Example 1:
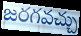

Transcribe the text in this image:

జరగవచ్చు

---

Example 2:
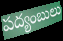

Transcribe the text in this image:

పద్యంబులు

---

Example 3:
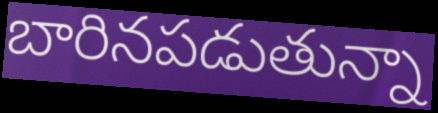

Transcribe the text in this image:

బారినపడుతున్నా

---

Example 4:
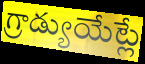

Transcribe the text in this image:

గ్రాడ్యుయేట్లే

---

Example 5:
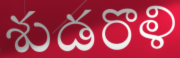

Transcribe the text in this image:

శుడరొళి